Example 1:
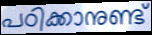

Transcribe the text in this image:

പഠിക്കാനുണ്ട്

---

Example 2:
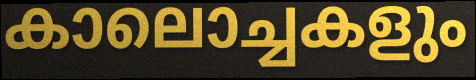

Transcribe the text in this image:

കാലൊച്ചകളും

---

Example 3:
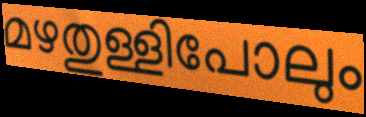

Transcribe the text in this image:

മഴതുള്ളിപോലും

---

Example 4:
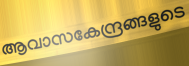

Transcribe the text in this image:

ആവാസകേന്ദ്രങ്ങളുടെ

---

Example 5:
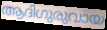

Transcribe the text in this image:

ആദിഗുരുവായ